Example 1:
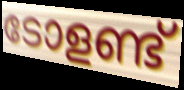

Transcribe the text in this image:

ടോളണ്ട്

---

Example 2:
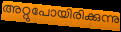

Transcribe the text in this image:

അറ്റുപോയിരിക്കുന്നു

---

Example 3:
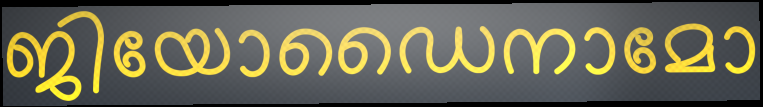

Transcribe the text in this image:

ജിയോഡൈനാമോ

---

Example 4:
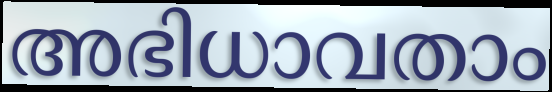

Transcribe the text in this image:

അഭിധാവതാം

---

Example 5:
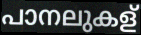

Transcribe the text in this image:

പാനലുകള്